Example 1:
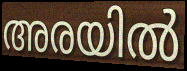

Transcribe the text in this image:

അരയിൽ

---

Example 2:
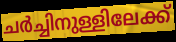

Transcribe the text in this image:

ചർച്ചിനുള്ളിലേക്ക്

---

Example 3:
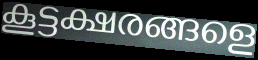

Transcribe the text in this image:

കൂട്ടക്ഷരങ്ങളെ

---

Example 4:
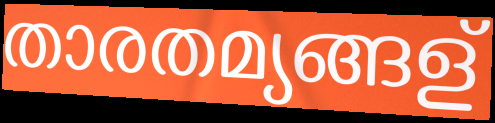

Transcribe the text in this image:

താരതമ്യങ്ങള്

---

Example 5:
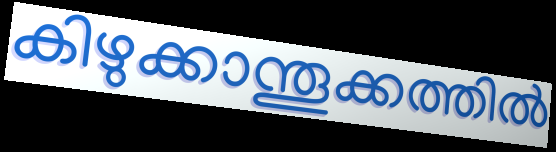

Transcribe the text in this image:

കിഴുക്കാന്തൂക്കത്തിൽ